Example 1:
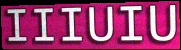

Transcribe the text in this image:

IIIUIU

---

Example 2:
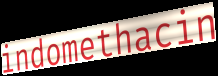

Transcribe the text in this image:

indomethacin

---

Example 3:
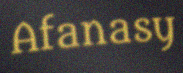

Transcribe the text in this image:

Afanasy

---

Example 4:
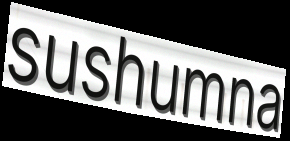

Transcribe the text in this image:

sushumna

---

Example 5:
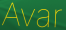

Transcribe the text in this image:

Avar